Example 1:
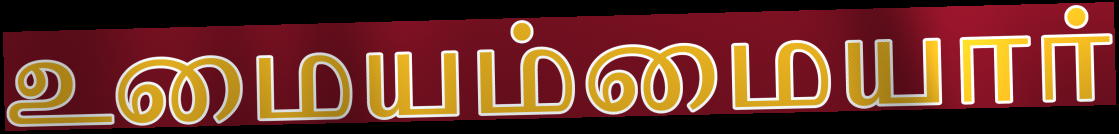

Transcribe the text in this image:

உமையம்மையார்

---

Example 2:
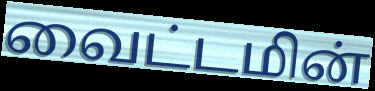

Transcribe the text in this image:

வைட்டமின்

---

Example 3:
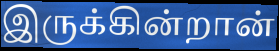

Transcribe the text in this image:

இருக்கின்றான்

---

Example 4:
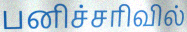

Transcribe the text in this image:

பனிச்சரிவில்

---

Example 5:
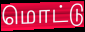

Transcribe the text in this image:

மொட்டு